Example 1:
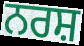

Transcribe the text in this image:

ਨਰਸ਼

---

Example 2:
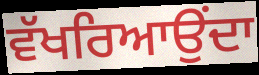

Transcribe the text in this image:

ਵੱਖਰਿਆਉਂਦਾ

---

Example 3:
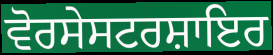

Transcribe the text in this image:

ਵੋਰਸੇਸਟਰਸ਼ਾਇਰ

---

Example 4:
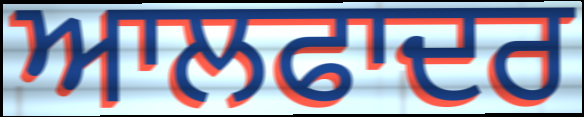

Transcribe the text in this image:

ਆਲਫਾਦਰ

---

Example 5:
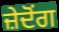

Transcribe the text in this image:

ਜ਼ੇਦੋਂਗ